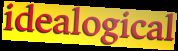
idealogical